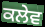
ਕਲੇਵ